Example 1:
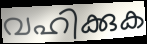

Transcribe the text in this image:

വഹിക്കുക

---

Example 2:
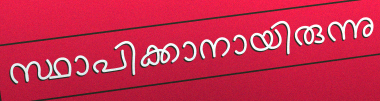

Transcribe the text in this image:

സ്ഥാപിക്കാനായിരുന്നു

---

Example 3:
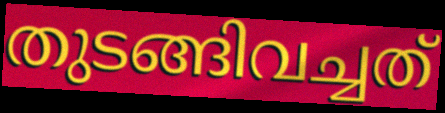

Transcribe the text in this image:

തുടങ്ങിവച്ചത്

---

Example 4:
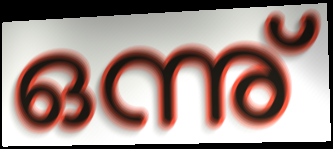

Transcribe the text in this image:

ഒന്നു്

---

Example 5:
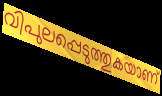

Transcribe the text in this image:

വിപുലപ്പെടുത്തുകയാണ്